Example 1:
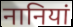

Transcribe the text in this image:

नानियां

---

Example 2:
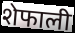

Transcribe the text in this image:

शेफाली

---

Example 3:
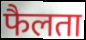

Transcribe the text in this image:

फैलता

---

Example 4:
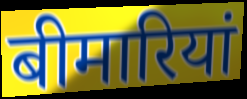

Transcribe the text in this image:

बीमारियां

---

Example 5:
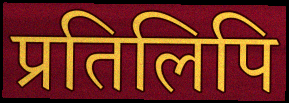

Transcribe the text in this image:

प्रतिलिपि